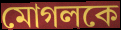
মোগলকে